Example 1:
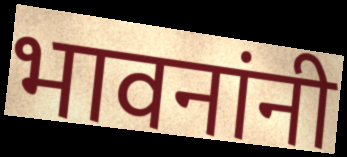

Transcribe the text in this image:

भावनांनी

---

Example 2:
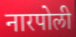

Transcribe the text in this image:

नारपोली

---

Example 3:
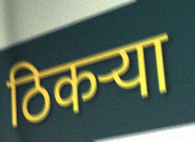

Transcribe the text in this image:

ठिकर्‍या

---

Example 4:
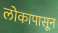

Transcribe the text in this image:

लोकापासून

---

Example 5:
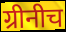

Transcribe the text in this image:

ग्रीनीच